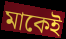
মাকেই